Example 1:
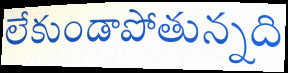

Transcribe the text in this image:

లేకుండాపోతున్నది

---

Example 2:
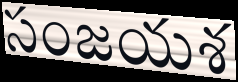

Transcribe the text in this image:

సంజయశ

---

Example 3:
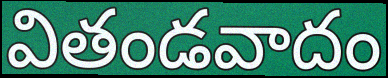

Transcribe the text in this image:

వితండవాదం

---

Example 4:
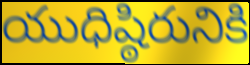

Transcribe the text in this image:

యుధిష్ఠిరునికి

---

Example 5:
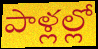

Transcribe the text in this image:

పాళ్లల్లో